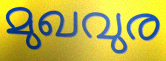
മുഖവുര